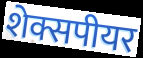
शेक्सपीयर